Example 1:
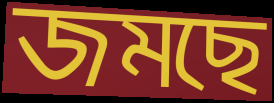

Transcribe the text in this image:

জমছে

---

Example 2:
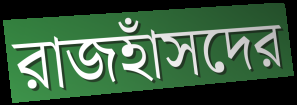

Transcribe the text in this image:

রাজহাঁসদের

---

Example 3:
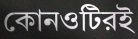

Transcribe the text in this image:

কোনওটিরই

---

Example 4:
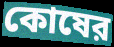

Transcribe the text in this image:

কোষের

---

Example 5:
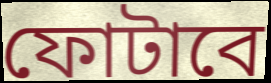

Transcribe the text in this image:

ফোটাবে